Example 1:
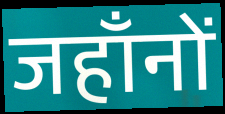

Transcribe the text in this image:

जहाँनों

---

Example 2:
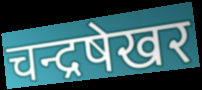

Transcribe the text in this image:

चन्द्रषेखर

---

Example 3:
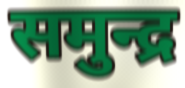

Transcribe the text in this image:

समुन्द्र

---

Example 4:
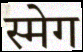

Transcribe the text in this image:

स्मेग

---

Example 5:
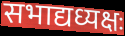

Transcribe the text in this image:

सभाद्यध्यक्षः